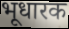
भूधारक